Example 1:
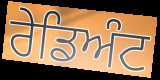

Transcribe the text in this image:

ਰੇਡਿਅੰਟ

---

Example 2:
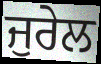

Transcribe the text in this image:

ਜੁਰੇਲ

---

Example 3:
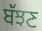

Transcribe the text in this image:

ਬੱਝਣ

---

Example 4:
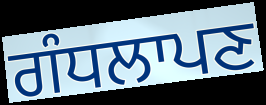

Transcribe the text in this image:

ਗੰਧਲਾਪਣ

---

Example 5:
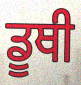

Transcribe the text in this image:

ਡੂਥੀ